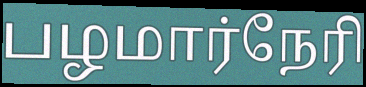
பழமார்நேரி